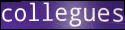
collegues